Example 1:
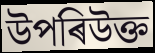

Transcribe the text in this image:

উপৰিউক্ত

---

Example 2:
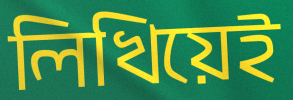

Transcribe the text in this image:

লিখিয়েই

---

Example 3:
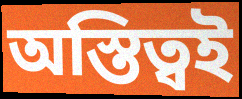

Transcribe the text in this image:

অস্তিত্বই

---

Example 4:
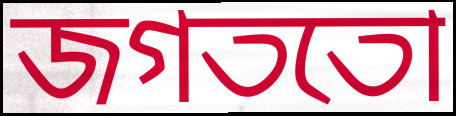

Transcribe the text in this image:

জগততো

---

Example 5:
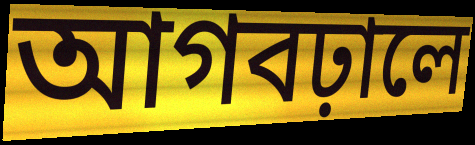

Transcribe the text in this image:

আগবঢ়ালে